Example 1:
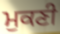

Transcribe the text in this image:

ਮੁਕਣੀ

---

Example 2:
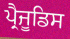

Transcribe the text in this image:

ਪ੍ਰੈਜੂਡਿਸ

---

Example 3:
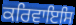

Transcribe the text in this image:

ਕਰਿਵਾਇਸਿ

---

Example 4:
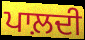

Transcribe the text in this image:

ਪਾਲ਼ਦੀ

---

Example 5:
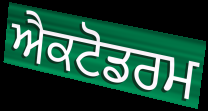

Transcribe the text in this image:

ਐਕਟੋਡਰਮ